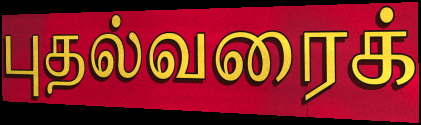
புதல்வரைக்